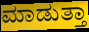
ಮಾಡುತ್ತಾ